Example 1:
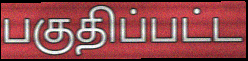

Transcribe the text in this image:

பகுதிப்பட்ட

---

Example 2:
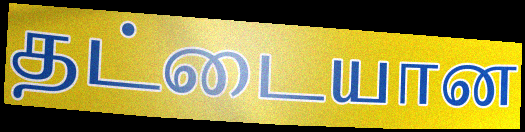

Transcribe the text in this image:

தட்டையான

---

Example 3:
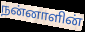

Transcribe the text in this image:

நன்னாளின்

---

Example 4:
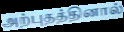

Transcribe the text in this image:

அற்புதத்தினால்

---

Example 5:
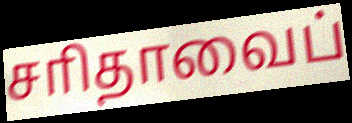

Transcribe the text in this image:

சரிதாவைப்